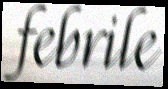
febrile